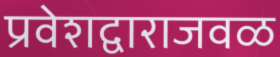
प्रवेशद्वाराजवळ